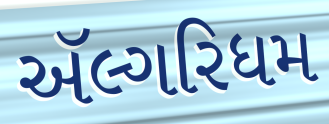
ઍલ્ગરિધમ